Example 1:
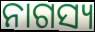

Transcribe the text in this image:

ନାଗସ୍ୟ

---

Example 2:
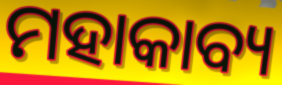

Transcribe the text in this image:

ମହାକାବ୍ୟ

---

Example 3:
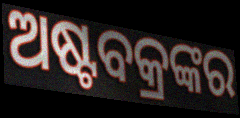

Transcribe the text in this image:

ଅଷ୍ଟବକ୍ରଙ୍କର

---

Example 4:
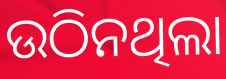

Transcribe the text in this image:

ଉଠିନଥିଲା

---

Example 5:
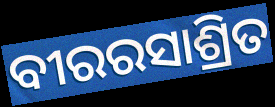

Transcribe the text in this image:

ବୀରରସାଶ୍ରିତ